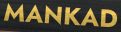
MANKAD